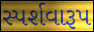
સ્પર્શવારૂપ